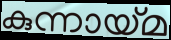
കുന്നായ്മ